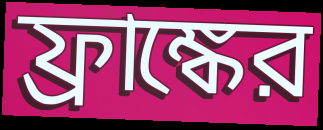
ফ্রাঙ্কের